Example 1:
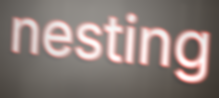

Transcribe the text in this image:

nesting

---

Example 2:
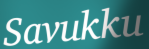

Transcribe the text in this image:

Savukku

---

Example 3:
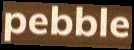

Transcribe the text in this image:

pebble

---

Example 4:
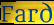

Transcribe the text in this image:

Fard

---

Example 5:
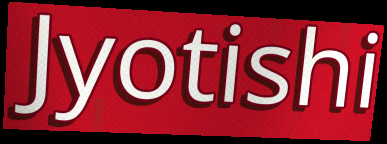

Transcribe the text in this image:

Jyotishi